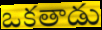
ఒకతాడు